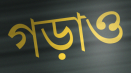
গড়াও